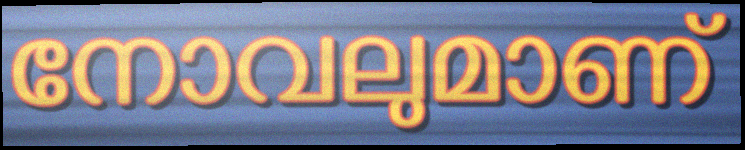
നോവലുമാണ്